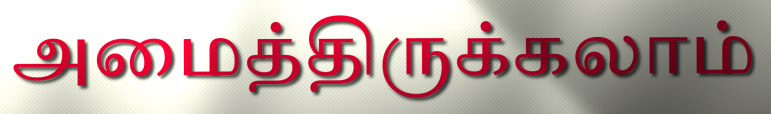
அமைத்திருக்கலாம்